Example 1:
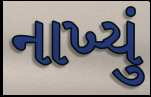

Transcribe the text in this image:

નાખ્યું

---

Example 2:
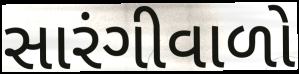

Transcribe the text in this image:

સારંગીવાળો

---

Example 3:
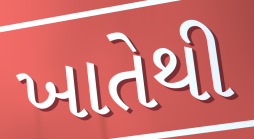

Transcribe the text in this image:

ખાતેથી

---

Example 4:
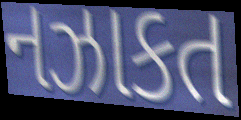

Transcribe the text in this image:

નઝાકત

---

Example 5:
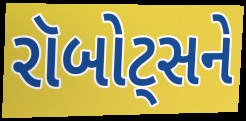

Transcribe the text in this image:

રૉબોટ્સને